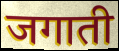
जगाती